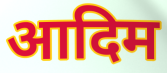
आदिम